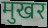
मुखर